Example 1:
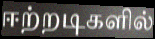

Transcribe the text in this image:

ஈற்றடிகளில்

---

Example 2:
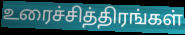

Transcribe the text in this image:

உரைச்சித்திரங்கள்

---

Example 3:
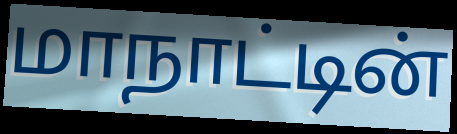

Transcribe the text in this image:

மாநாட்டின்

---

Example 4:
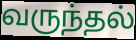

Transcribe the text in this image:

வருந்தல்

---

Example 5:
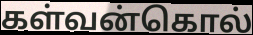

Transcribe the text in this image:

கள்வன்கொல்